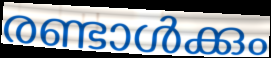
രണ്ടാൾക്കും